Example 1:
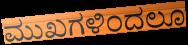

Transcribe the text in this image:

ಮುಖಗಳಿಂದಲೂ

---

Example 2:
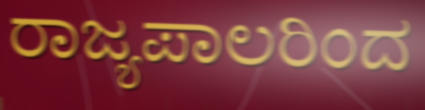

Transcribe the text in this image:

ರಾಜ್ಯಪಾಲರಿಂದ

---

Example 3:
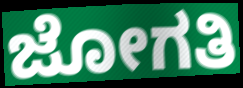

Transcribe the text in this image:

ಜೋಗತಿ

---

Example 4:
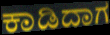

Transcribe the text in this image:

ಕಾಡಿದಾಗ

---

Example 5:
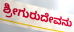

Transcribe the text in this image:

ಶ್ರೀಗುರುದೇವನು